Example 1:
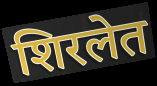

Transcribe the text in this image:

शिरलेत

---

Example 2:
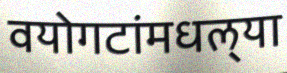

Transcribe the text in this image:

वयोगटांमधल्या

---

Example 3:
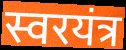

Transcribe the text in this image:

स्वरयंत्र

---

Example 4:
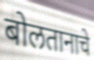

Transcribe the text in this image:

बोलतानाचे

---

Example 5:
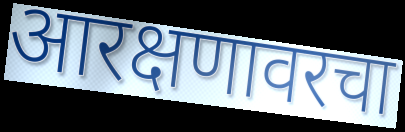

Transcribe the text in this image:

आरक्षणावरचा